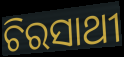
ଚିରସାଥୀ